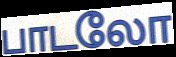
பாடலோ